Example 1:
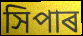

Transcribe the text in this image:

সিপাৰ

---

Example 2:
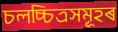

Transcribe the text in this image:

চলচ্চিত্ৰসমূহৰ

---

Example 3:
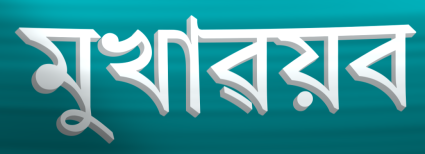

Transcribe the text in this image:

মুখাৱয়ব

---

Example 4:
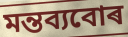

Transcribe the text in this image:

মন্তব্যবোৰ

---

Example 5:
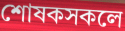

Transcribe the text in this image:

শোষকসকলে